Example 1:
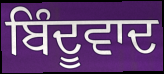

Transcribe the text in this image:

ਬਿੰਦੂਵਾਦ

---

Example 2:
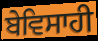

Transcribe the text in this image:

ਬੇਵਿਸਾਹੀ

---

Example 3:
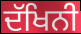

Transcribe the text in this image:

ਦੱਖਿਨੀ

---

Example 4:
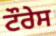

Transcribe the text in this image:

ਟੌਰੇਸ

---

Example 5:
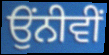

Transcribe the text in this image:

ਉੰਨੀਵੀਂ